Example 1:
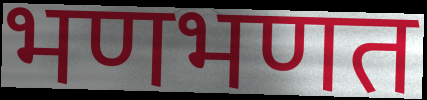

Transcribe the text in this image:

भणभणत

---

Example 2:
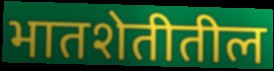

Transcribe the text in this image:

भातशेतीतील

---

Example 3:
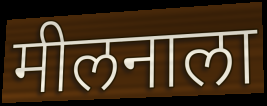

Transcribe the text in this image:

मीलनाला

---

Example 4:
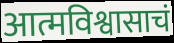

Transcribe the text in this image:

आत्मविश्वासाचं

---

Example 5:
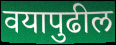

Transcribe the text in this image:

वयापुढील